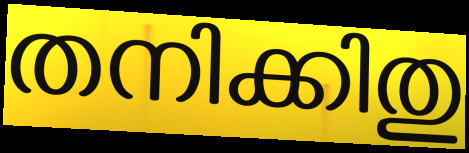
തനിക്കിതു